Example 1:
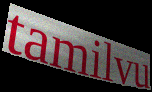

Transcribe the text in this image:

tamilvu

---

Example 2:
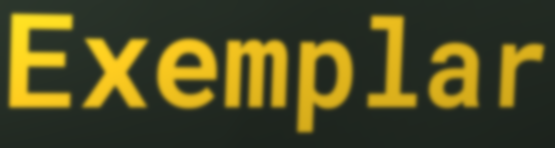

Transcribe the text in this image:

Exemplar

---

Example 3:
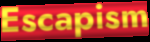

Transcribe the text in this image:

Escapism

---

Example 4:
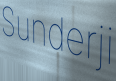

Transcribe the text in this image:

Sunderji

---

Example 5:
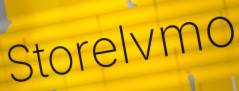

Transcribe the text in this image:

Storelvmo